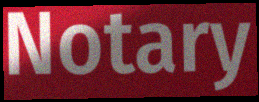
Notary